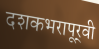
दशकभरापूर्वी